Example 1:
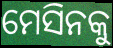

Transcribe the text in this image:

ମେସିନକୁ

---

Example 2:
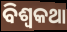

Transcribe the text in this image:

ବିଶ୍ୱକଥା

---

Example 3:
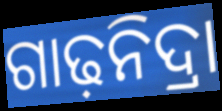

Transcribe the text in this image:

ଗାଢ଼ନିଦ୍ରା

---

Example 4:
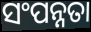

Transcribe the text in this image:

ସଂପନ୍ନତା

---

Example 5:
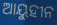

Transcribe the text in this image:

ଆୟୁହୀନ